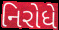
નિરોધે